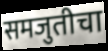
समजुतीचा